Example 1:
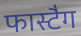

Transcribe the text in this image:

फास्‍टैग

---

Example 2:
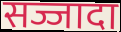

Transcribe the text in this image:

सज्जादा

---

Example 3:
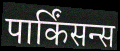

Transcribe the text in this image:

पार्किंसन्स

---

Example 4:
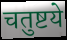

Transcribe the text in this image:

चतुष्टये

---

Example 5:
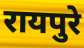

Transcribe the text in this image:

रायपुरे